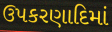
ઉપકરણાદિમાં